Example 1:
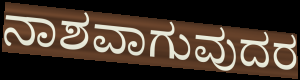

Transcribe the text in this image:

ನಾಶವಾಗುವುದರ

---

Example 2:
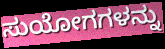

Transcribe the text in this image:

ಸುಯೋಗಗಳನ್ನು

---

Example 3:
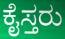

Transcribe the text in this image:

ಕೈಸ್ತರು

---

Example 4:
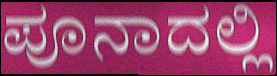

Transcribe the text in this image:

ಪೂನಾದಲ್ಲಿ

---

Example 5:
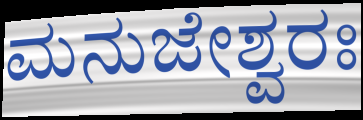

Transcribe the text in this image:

ಮನುಜೇಶ್ವರಃ